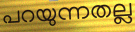
പറയുന്നതല്ല